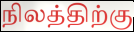
நிலத்திற்கு